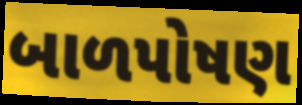
બાળપોષણ